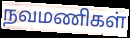
நவமணிகள்